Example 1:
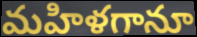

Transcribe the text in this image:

మహిళగానూ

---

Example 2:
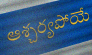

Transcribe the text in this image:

ఆశ్చర్యపోయే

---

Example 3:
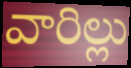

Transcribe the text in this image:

వారిల్లు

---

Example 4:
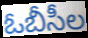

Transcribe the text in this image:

ఓబీసీల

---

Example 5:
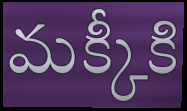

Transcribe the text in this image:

మక్కీకి